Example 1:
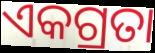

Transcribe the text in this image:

ଏକଗ୍ରତା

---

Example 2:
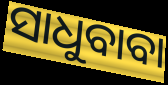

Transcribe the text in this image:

ସାଧୁବାବା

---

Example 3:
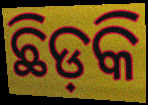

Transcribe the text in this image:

ଛିଡ଼କି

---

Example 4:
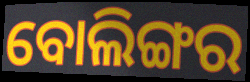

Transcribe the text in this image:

ବୋଲିଙ୍ଗର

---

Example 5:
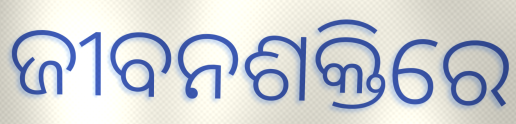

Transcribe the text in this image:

ଜୀବନଶକ୍ତିରେ